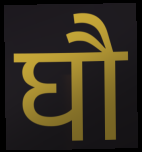
घौ